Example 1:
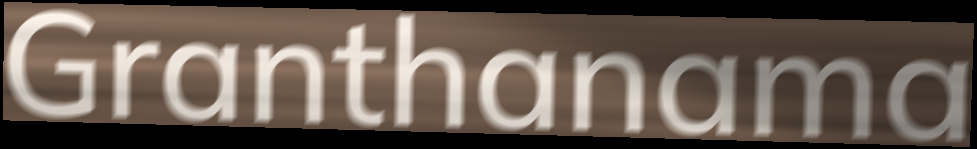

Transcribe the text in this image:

Granthanama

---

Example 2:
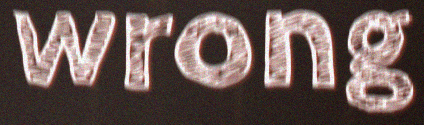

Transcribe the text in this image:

wrong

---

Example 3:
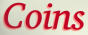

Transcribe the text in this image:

Coins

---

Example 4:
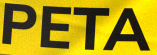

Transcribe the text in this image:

PETA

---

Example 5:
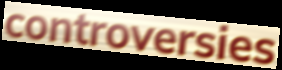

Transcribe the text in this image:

controversies